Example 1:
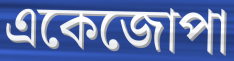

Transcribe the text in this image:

একেজোপা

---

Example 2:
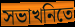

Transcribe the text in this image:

সভাখনিতে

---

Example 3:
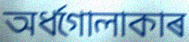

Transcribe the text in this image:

অৰ্ধগোলাকাৰ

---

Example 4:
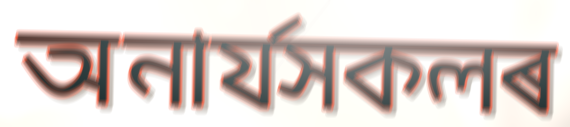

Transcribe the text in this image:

অনাৰ্যসকলৰ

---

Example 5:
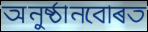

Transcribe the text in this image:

অনুষ্ঠানবোৰত